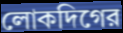
লোকদিগের